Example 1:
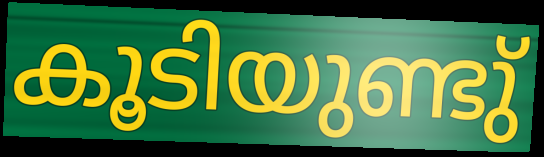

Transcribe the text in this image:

കൂടിയുണ്ടു്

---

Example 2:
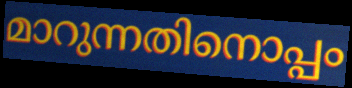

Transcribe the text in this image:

മാറുന്നതിനൊപ്പം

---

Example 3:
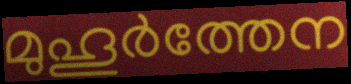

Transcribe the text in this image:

മുഹൂർത്തേന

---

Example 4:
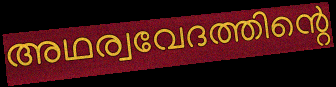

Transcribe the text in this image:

അഥര്വവേദത്തിന്റെ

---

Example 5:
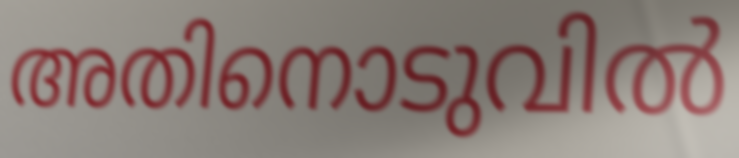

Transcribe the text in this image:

അതിനൊടുവിൽ